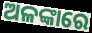
ଅଳଙ୍କାରେ